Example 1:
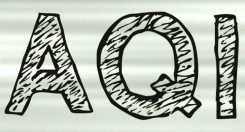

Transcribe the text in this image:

AQI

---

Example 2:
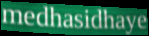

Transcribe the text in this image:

medhasidhaye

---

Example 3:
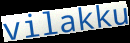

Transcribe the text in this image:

vilakku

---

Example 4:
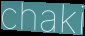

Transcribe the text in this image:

chaki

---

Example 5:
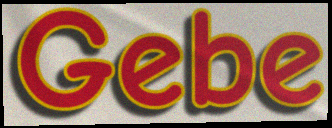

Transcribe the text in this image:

Gebe